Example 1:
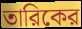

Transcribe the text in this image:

তারিকের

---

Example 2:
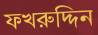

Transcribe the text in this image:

ফখরুদ্দিন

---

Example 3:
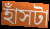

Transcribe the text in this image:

হাঁসটা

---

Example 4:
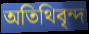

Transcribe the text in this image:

অতিথিবৃন্দ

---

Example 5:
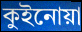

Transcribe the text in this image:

কুইনোয়া